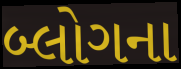
બ્લોગના